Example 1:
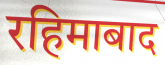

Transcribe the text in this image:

रहिमाबाद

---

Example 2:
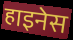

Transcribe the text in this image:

हाइनेस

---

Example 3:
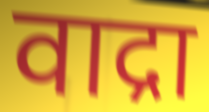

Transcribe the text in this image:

वाद्रा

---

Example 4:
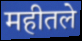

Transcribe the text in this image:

महीतले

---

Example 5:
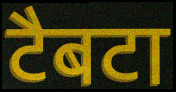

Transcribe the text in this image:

टैबटा